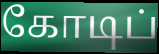
கோடிப்